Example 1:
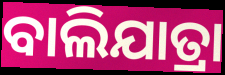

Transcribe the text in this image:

ବାଲିଯାତ୍ରା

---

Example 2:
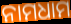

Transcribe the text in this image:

ନାମଧାମ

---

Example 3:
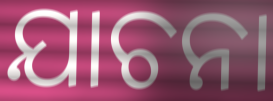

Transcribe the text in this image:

ଯାଚନା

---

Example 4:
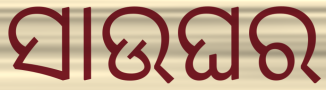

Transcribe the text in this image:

ସାଉଘର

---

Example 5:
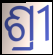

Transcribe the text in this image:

ଶ୍ରୀ